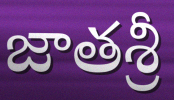
జాతశ్రీ